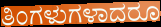
ತಿಂಗಳುಗಳಾದರೂ